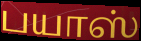
பயாஸ்